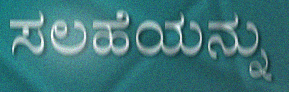
ಸಲಹೆಯನ್ನು